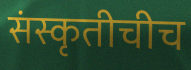
संस्कृतीचीच